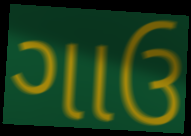
ગાઉ